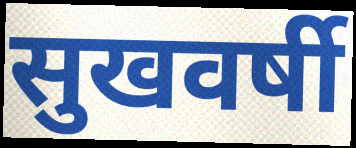
सुखवर्षी